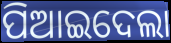
ପିଆଇଦେଲା